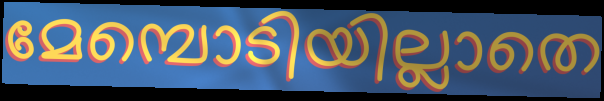
മേമ്പൊടിയില്ലാതെ